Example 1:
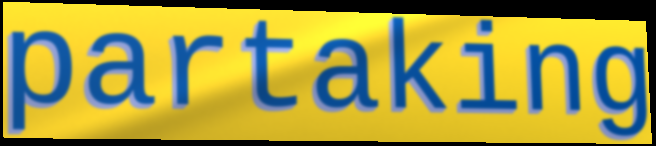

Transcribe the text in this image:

partaking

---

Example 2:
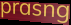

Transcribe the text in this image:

prasng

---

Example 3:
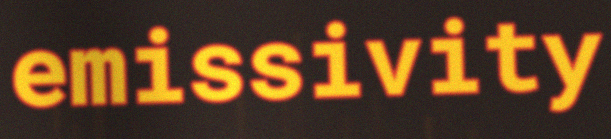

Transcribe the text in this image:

emissivity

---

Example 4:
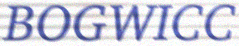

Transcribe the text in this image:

BOGWICC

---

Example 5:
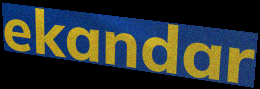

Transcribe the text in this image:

ekandar